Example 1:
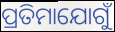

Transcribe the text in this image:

ପ୍ରତିମାଯୋଗୁଁ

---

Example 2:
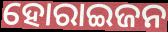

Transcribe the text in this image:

ହୋରାଇଜନ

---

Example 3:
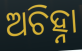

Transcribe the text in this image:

ଅଚିହ୍ନା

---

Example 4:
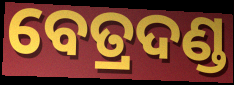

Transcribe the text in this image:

ବେତ୍ରଦଣ୍ଡ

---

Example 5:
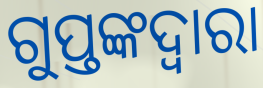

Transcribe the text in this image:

ଗୁପ୍ତଙ୍କଦ୍ୱାରା